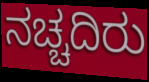
ನಚ್ಚದಿರು